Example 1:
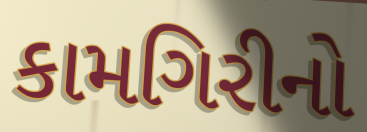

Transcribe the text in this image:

કામગિરીનો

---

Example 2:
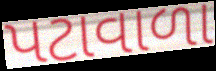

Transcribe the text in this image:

પટાવાળા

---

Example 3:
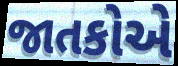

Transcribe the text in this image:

જાતકોએ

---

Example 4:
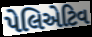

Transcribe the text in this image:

પેલિએટિવ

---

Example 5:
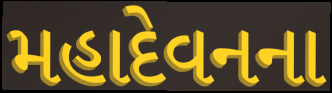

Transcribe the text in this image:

મહાદેવનના